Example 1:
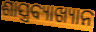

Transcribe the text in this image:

ଶାସ୍ତ୍ରବ୍ୟାଖ୍ୟାନ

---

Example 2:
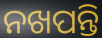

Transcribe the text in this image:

ନଖପନ୍ତି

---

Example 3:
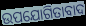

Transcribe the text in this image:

ଉପଯୋଗିତାବାଦ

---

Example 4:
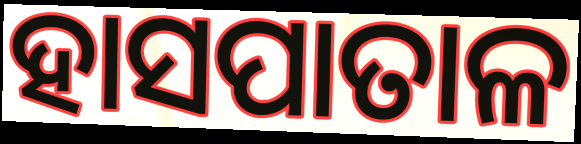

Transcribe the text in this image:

ହାସପାତାଳ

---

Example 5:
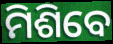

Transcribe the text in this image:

ମିଶିବେ